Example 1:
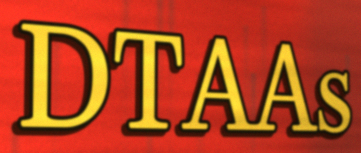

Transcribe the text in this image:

DTAAs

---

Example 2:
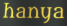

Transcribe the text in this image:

hanya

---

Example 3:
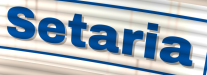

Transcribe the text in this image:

Setaria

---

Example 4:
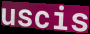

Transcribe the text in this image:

uscis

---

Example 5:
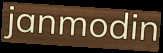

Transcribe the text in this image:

janmodin